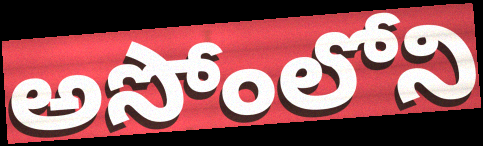
అసోంలోని